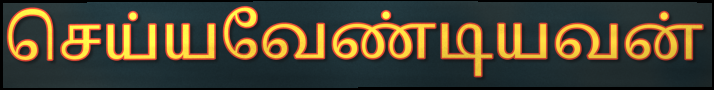
செய்யவேண்டியவன்